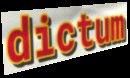
dictum